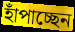
হাঁপাচ্ছেন